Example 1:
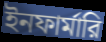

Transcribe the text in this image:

ইনফার্মারি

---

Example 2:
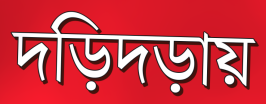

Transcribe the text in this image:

দড়িদড়ায়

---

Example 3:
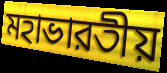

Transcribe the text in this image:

মহাভারতীয়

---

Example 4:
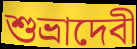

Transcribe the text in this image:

শুভ্রাদেবী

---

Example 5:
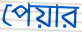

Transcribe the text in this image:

পেয়ার